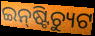
ଇନ୍‍ଷ୍ଟିଚ୍ୟୁଟ